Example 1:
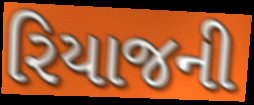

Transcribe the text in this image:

રિયાજની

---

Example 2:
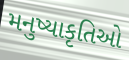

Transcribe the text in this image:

મનુષ્યાકૃતિઓ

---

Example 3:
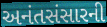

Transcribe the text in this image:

અનંતસંસારની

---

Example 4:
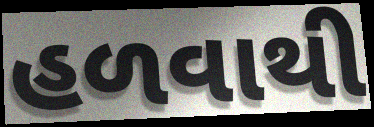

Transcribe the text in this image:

હળવાથી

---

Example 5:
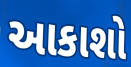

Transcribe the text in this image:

આકાશો